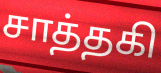
சாத்தகி